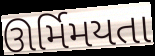
ઊર્મિમયતા